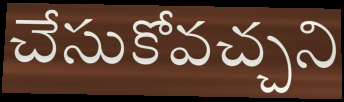
చేసుకోవచ్చని